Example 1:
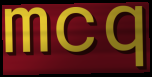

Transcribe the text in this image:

mcq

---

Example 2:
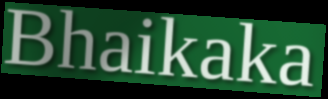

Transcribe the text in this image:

Bhaikaka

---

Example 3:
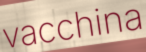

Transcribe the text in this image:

vacchina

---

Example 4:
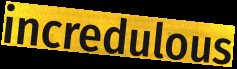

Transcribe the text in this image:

incredulous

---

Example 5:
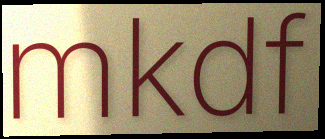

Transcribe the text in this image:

mkdf